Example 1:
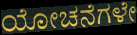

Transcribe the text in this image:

ಯೋಚನೆಗಳೇ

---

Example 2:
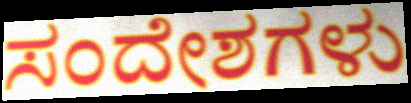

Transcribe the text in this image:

ಸಂದೇಶಗಳು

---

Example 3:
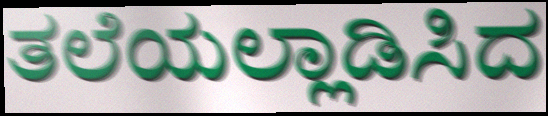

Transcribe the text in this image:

ತಲೆಯಲ್ಲಾಡಿಸಿದ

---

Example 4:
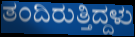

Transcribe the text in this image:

ತಂದಿರುತ್ತಿದ್ದಳು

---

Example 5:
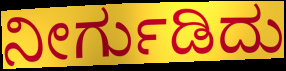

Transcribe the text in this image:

ನೀರ್ಗುಡಿದು